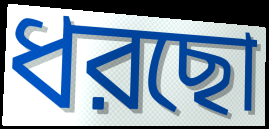
ধরছো